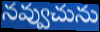
నవ్వుచును